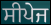
ਸੀਪੇਜ